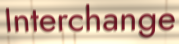
Interchange